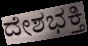
ದೇಶಭಕ್ತಿ